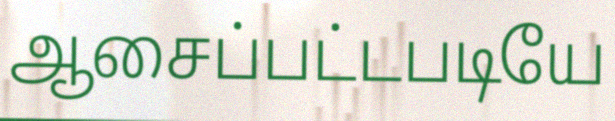
ஆசைப்பட்டபடியே